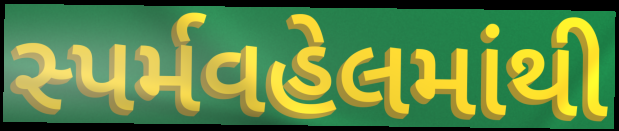
સ્પર્મવહેલમાંથી